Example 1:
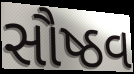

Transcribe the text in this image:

સૌષ્ઠવ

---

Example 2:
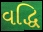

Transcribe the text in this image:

વદ્ધિ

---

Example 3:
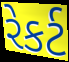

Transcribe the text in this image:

રેકર્ટ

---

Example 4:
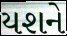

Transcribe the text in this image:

યશને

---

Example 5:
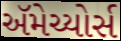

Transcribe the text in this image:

ઍમેચ્યોર્સ